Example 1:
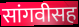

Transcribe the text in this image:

सांगवीसह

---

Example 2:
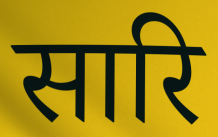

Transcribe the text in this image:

सारि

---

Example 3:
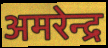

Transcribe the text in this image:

अमरेन्द्र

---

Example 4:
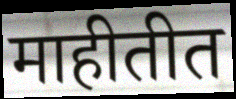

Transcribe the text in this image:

माहीतीत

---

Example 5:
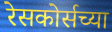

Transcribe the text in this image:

रेसकोर्सच्या